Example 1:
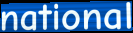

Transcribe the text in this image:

national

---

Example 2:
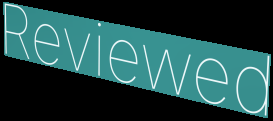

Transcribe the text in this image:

Reviewed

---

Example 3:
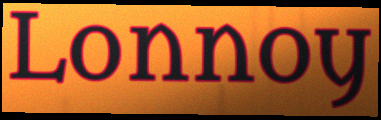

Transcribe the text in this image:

Lonnoy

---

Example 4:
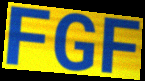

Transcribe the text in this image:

FGF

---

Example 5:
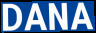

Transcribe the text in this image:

DANA